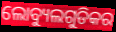
ଲୋବ୍ୟୁଲଗୁଡିକର